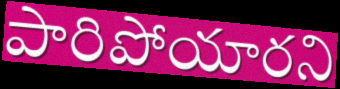
పారిపోయారని